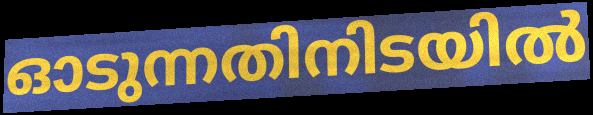
ഓടുന്നതിനിടയിൽ